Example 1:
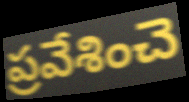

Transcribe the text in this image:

ప్రవేశించె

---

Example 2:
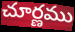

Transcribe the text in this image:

చూర్ణము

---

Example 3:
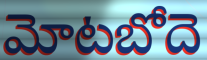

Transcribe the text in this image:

మోటబోదె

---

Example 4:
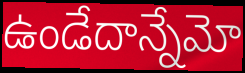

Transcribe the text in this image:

ఉండేదాన్నేమో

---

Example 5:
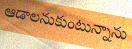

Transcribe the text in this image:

ఆడాలనుకుంటున్నాను